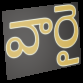
వారై